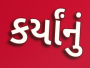
કર્યાંનું